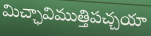
మిచ్ఛావిముత్తిపచ్చయా